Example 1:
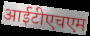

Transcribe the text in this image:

आईटीएचएम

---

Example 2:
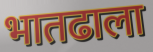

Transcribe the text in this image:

भातढाला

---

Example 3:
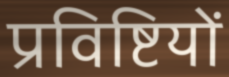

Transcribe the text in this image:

प्रविष्टियों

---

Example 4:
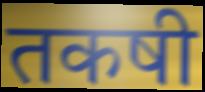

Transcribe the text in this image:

तकषी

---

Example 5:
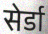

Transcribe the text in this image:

सेर्डा